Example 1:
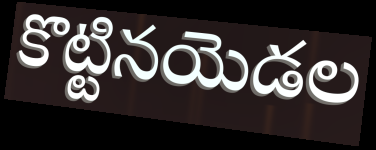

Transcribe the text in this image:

కొట్టినయెడల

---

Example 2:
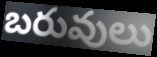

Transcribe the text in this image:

బరువులు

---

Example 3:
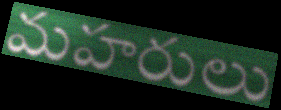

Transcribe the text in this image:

మహరులు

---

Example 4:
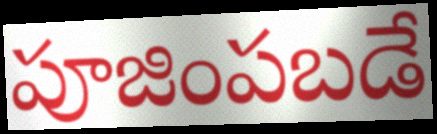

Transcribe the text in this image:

పూజింపబడే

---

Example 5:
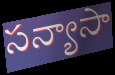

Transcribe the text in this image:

సన్యాసా